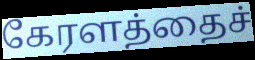
கேரளத்தைச்